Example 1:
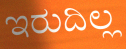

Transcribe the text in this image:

ಇರುದಿಲ್ಲ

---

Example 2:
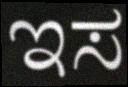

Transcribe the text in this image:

ಇಸ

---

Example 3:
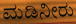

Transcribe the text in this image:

ಮಡಿನೀರು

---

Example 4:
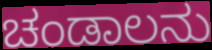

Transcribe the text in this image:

ಚಂಡಾಲನು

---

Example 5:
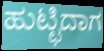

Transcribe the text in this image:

ಹುಟ್ಟಿದಾಗ